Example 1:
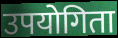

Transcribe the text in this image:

उपयोगिता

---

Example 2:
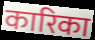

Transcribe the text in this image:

कारिका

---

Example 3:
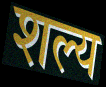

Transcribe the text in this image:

शल्‍य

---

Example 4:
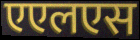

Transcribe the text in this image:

एएलएस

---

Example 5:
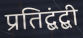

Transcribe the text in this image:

प्रतिद्बंद्बी